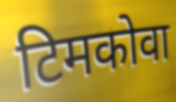
टिमकोवा